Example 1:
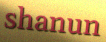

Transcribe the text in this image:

shanun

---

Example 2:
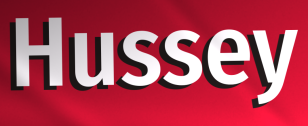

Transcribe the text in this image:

Hussey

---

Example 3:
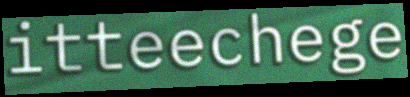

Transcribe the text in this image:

itteechege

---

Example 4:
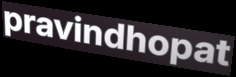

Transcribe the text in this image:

pravindhopat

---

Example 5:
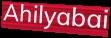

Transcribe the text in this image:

Ahilyabai